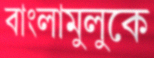
বাংলামুলুকে